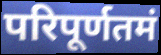
परिपूर्णतमं